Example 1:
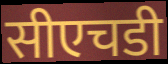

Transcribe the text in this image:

सीएचडी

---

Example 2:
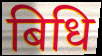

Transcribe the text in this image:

बिधि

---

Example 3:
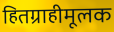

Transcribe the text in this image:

हितग्राहीमूलक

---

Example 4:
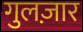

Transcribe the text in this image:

गुलज़ार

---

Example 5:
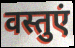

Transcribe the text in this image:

वस्तुएं